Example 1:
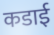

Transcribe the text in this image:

कडाई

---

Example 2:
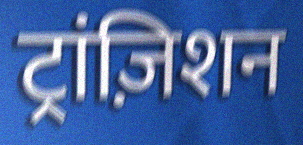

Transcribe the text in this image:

ट्रांज़िशन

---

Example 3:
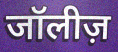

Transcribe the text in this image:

जॉलीज़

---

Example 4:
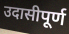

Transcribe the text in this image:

उदासीपूर्ण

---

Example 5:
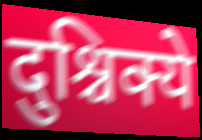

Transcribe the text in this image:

दुश्चिक्ये